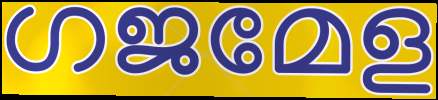
ഗജമേള